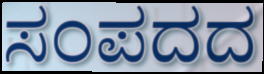
ಸಂಪದದ